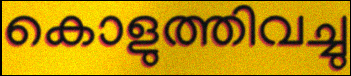
കൊളുത്തിവച്ചു